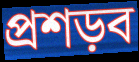
প্রশড়ব